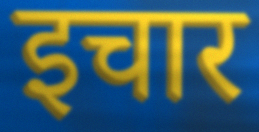
इचार